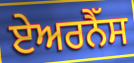
ਏਅਰਨੈੱਸ